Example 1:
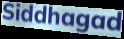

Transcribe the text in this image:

Siddhagad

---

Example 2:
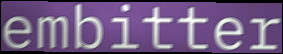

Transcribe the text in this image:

embitter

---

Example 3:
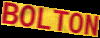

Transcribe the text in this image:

BOLTON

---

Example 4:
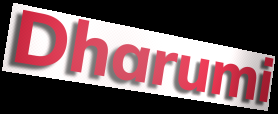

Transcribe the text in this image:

Dharumi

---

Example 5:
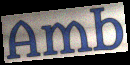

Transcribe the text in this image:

Amb